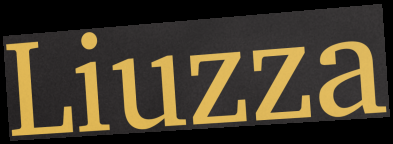
Liuzza